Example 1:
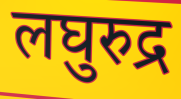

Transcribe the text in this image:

लघुरुद्र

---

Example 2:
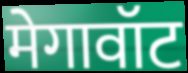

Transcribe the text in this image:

मेगावॉट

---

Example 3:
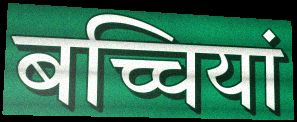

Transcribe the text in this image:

बच्चियां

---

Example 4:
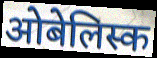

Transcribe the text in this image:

ओबेलिस्क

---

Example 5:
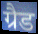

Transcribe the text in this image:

ग्रैड